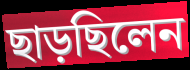
ছাড়ছিলেন